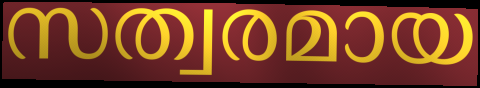
സത്വരമായ